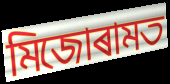
মিজোৰামত